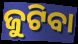
ଜୁଟିବା